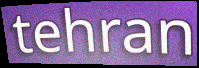
tehran